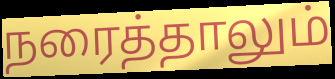
நரைத்தாலும்